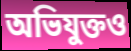
অভিযুক্তও